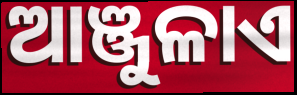
ଆଞ୍ଜୁଳାଏ